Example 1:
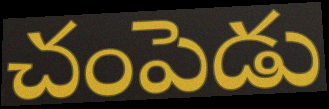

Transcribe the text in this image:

చంపెడు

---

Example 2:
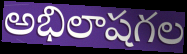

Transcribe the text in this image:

అభిలాషగల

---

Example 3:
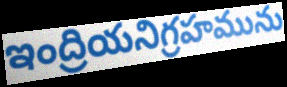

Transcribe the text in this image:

ఇంద్రియనిగ్రహమును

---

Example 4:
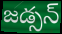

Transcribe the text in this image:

జడ్సన్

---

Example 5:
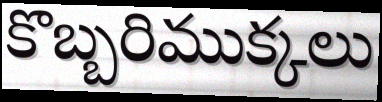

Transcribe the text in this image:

కొబ్బరిముక్కలు